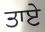
ਤਾਏ